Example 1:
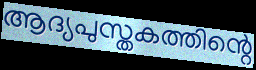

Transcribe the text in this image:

ആദ്യപുസ്തകത്തിന്റെ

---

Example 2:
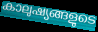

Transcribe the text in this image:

കാലുഷ്യങ്ങളുടെ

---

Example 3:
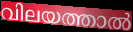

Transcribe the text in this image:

വിലയത്താൽ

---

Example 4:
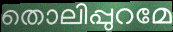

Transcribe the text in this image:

തൊലിപ്പുറമേ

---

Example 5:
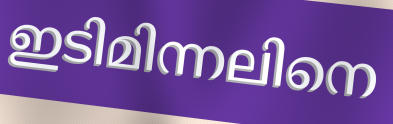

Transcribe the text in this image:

ഇടിമിന്നലിനെ